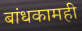
बांधकामही